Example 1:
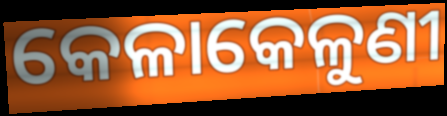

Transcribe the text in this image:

କେଳାକେଳୁଣୀ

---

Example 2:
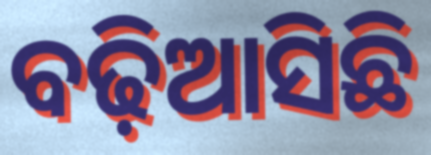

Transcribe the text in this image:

ବଢ଼ିଆସିଛି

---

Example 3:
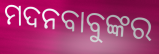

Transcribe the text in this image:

ମଦନବାବୁଙ୍କର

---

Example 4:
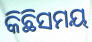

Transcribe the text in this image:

କିଛିସମୟ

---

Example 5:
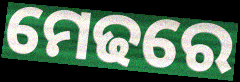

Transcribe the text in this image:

ମେଢରେ